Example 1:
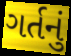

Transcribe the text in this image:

ગર્તનું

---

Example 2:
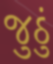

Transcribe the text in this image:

જુઠું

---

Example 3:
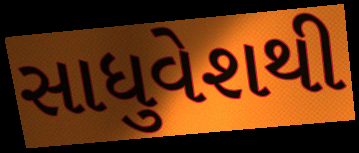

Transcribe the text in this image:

સાધુવેશથી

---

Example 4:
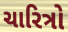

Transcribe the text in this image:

ચારિત્રો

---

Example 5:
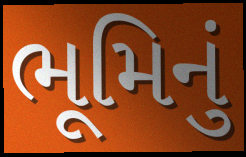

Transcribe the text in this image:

ભૂમિનું